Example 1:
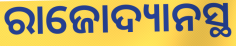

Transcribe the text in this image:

ରାଜୋଦ୍ୟାନସ୍ଥ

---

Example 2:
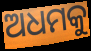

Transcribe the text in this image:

ଅଧମକୁ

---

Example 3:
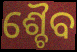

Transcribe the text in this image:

ଶ୍ଚୈବ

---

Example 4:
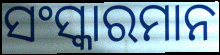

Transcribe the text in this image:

ସଂସ୍କାରମାନ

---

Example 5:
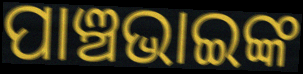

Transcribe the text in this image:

ପାଞ୍ଚଭାଇଙ୍କ